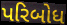
પરિબોધ